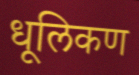
धूलिकण